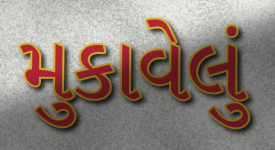
મુકાવેલું